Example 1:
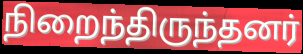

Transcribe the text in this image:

நிறைந்திருந்தனர்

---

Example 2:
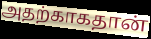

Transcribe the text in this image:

அதற்காகதான்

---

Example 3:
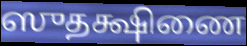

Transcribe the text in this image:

ஸுதக்ஷிணை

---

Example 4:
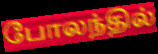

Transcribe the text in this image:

போலந்தில்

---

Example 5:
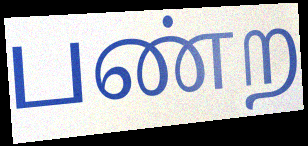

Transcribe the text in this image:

பண்ற